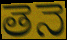
తెనె